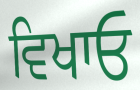
ਵਿਖਾਓ